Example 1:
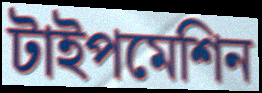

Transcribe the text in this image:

টাইপমেশিন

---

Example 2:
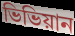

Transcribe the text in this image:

ভিভিয়ান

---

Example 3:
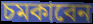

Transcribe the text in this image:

চমকাবেন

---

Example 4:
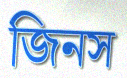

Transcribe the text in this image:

জিনস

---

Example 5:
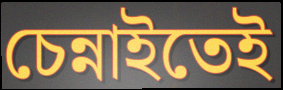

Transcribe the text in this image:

চেন্নাইতেই